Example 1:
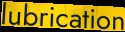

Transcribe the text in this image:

lubrication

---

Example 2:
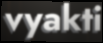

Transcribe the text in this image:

vyakti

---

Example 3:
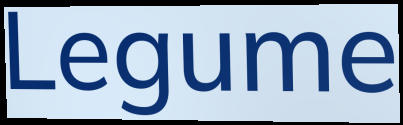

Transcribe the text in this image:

Legume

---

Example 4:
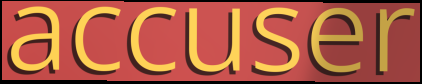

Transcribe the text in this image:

accuser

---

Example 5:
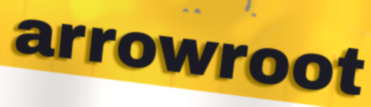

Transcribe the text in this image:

arrowroot